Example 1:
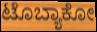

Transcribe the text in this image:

ಟೊಬ್ಯಾಕೋ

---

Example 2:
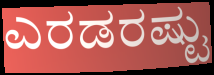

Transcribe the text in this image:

ಎರಡರಷ್ಟು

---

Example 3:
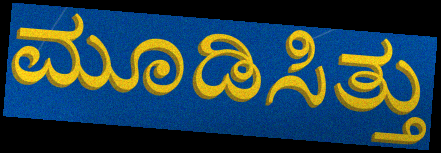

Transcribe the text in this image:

ಮೂಡಿಸಿತ್ತು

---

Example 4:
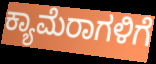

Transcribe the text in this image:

ಕ್ಯಾಮೆರಾಗಳಿಗೆ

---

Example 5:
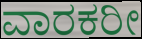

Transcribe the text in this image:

ವಾರಕರೀ